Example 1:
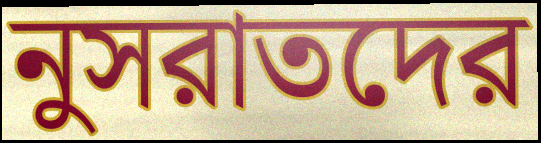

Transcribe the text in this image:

নুসরাতদের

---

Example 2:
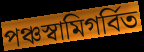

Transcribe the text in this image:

পঞ্চস্বামিগর্বিত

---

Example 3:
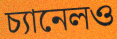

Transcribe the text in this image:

চ্যানেলও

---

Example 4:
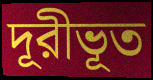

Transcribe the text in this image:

দূরীভূত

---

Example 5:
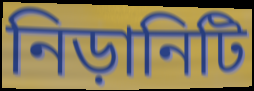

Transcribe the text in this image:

নিড়ানিটি